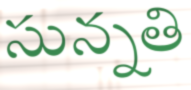
సున్నతి